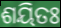
ଶୟିତଃ